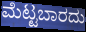
ಮೆಟ್ಟಬಾರದು